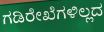
ಗಡಿರೇಖೆಗಳಿಲ್ಲದ